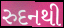
રુદનથી